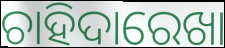
ଚାହିଦାରେଖା